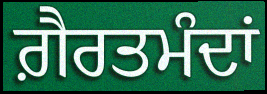
ਗ਼ੈਰਤਮੰਦਾਂ